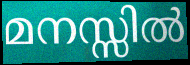
മനസ്സിൽ